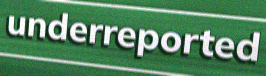
underreported